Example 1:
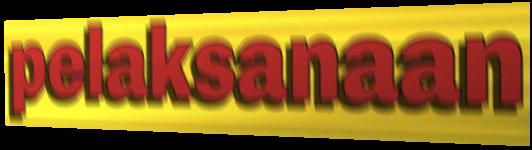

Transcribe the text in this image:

pelaksanaan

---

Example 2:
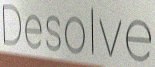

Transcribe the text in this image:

Desolve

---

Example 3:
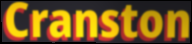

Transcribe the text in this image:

Cranston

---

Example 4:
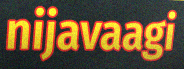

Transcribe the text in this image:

nijavaagi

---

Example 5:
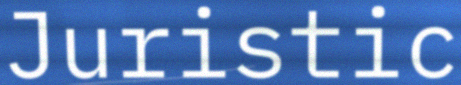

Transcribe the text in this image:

Juristic